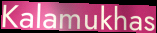
Kalamukhas